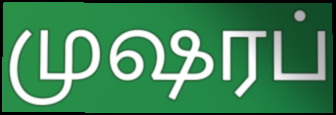
முஷரப்